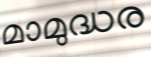
മാമുദ്ധര